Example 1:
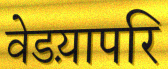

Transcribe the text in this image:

वेडय़ापरि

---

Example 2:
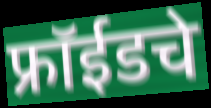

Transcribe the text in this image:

फ्रॉईडचे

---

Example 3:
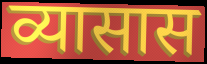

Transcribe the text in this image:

व्यासास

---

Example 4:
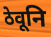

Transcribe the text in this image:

ठेवूनि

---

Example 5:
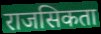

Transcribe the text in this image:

राजसिकता